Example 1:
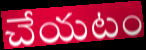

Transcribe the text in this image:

చేయటం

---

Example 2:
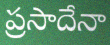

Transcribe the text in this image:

ప్రసాదేనా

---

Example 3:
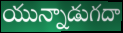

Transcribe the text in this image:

యున్నాడుగదా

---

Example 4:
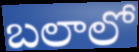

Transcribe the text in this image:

బలాలో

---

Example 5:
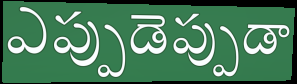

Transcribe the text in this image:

ఎప్పుడెప్పుడా